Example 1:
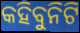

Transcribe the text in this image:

କହିବୁନିଟି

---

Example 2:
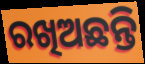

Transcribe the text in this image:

ରଖିଅଛନ୍ତି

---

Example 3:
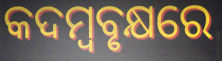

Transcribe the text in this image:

କଦମ୍ୱବୃକ୍ଷରେ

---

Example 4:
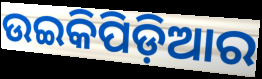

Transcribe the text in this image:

ଉଇକିପିଡ଼ିଆର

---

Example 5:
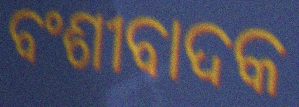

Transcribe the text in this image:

ବଂଶୀବାଦକ